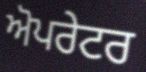
ਅੋਪਰੇਟਰ